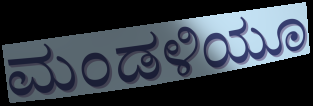
ಮಂಡಳಿಯೂ